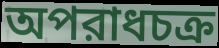
অপরাধচক্র